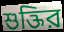
শুক্তির